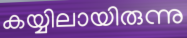
കയ്യിലായിരുന്നു